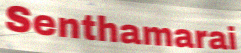
Senthamarai